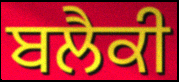
ਬਲੈਕੀ